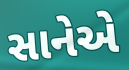
સાનેએ